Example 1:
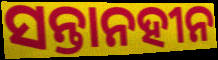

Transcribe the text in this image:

ସନ୍ତାନହୀନ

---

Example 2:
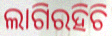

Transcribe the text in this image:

ଲାଗିରହିଚି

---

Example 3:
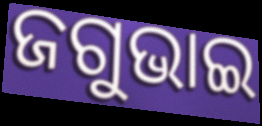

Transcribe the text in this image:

ଜଗୁଭାଇ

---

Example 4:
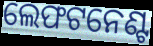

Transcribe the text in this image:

ଲେଫଟନେଣ୍ଟ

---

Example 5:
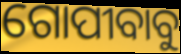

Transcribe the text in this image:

ଗୋପୀବାବୁ